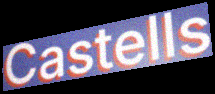
Castells